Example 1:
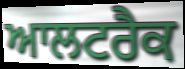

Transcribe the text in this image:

ਆਲਟਰੈਕ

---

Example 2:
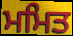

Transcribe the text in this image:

ਮਮਿਤ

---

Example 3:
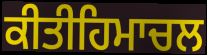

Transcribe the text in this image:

ਕੀਤੀਹਿਮਾਚਲ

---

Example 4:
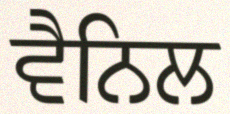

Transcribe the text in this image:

ਵੈਨਿਲ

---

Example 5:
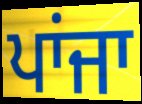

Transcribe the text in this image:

ਪਾਂਜਾ